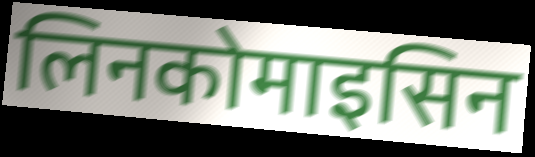
लिनकोमाइसिन